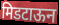
मिडटाऊन